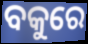
ବକୁରେ